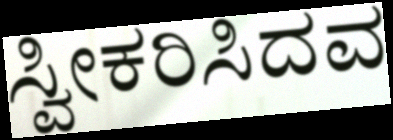
ಸ್ವೀಕರಿಸಿದವ